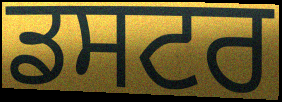
ਡਸਟਰ